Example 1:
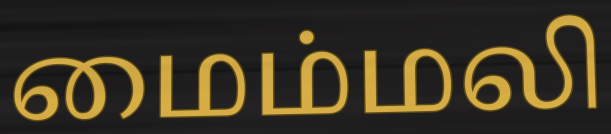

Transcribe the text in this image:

மைம்மலி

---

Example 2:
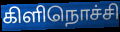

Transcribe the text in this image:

கிளிநொச்சி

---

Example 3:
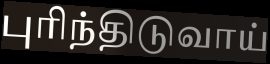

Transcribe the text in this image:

புரிந்திடுவாய்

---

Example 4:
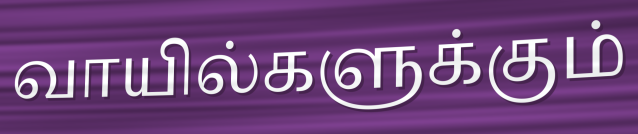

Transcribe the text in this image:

வாயில்களுக்கும்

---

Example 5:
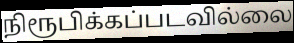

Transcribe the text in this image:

நிரூபிக்கப்படவில்லை